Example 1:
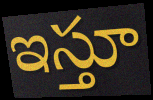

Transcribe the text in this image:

ఇస్తూ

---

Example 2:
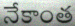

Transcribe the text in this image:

నేకాంత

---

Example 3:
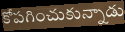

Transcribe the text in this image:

కోపగించుకున్నాడు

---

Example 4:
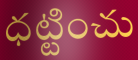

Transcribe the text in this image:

ధట్టించు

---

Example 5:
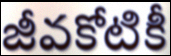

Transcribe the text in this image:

జీవకోటికీ